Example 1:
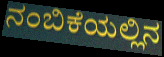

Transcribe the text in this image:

ನಂಬಿಕೆಯಲ್ಲಿನ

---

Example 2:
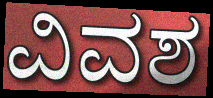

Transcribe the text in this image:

ವಿವಶ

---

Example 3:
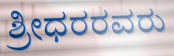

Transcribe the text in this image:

ಶ್ರೀಧರರವರು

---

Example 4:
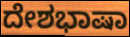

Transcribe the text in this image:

ದೇಶಭಾಷಾ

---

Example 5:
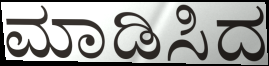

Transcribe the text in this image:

ಮಾಡಿಸಿದ